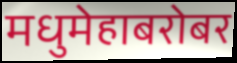
मधुमेहाबरोबर